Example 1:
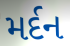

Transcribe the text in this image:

મર્દન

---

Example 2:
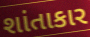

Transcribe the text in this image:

શાંતાકાર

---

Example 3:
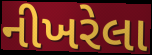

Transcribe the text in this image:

નીખરેલા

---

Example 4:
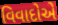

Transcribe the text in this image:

વિવાદોએ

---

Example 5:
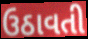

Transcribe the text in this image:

ઉઠાવતી